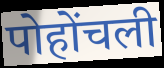
पोहोंचली